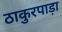
ठाकुरपाड़ा